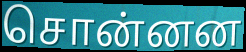
சொன்னன